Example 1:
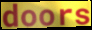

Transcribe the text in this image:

doors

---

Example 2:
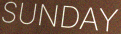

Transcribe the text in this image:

SUNDAY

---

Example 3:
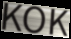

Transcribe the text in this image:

KOK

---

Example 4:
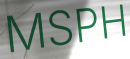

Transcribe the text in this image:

MSPH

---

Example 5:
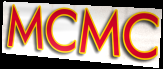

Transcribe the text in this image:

MCMC